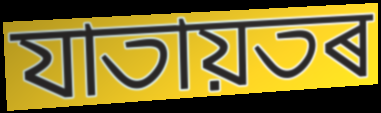
যাতায়তৰ